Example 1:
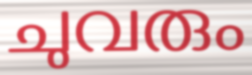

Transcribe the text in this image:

ചുവരും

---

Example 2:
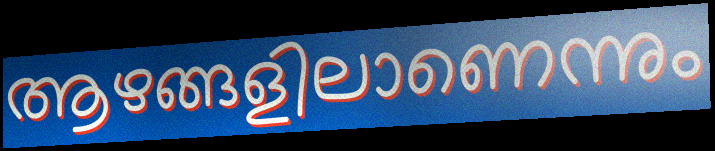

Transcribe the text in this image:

ആഴങ്ങളിലാണെന്നും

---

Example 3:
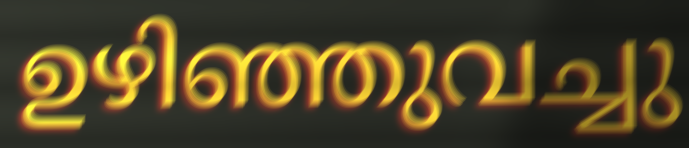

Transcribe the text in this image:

ഉഴിഞ്ഞുവച്ചു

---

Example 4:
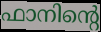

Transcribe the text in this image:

ഫാനിന്റെ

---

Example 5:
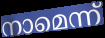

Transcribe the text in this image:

നാമെന്ന്